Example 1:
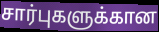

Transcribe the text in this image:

சார்புகளுக்கான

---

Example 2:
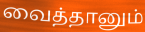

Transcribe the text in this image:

வைத்தானும்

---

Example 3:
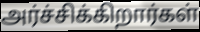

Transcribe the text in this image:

அர்ச்சிக்கிறார்கள்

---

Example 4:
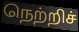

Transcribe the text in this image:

நெற்றிச்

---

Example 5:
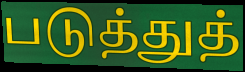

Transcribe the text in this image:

படுத்துத்